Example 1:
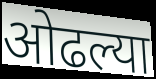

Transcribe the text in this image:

ओढल्या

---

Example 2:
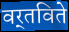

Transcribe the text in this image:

वर्तविते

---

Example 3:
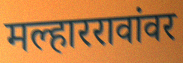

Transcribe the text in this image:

मल्हाररावांवर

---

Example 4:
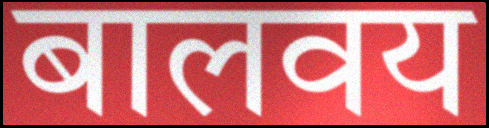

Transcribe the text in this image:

बालवय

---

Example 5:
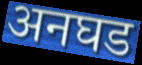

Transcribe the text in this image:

अनघड